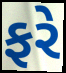
ફરે